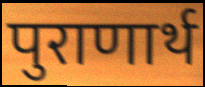
पुराणार्थ